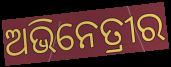
ଅଭିନେତ୍ରୀର